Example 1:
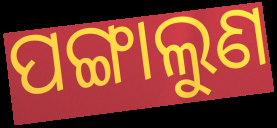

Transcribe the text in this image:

ପଙ୍ଗାଲୁଣ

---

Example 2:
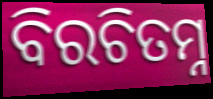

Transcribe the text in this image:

ବିରଚିତମ୍ନ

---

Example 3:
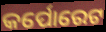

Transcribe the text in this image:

କର୍ପୋରେଟ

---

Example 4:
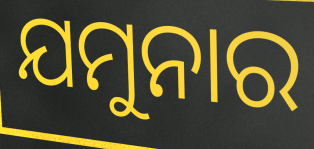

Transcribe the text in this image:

ଯମୁନାର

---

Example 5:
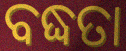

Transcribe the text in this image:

ବଦ୍ଧତା